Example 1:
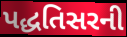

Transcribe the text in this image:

પદ્ધતિસરની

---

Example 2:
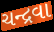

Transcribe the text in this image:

ચન્દ્રવા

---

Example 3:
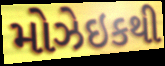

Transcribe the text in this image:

મોઝેઇકથી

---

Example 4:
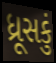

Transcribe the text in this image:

ધ્રૂસકું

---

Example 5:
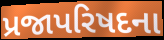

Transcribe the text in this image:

પ્રજાપરિષદના